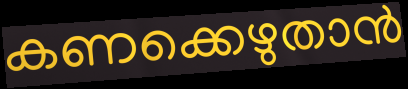
കണക്കെഴുതാൻ